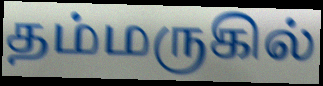
தம்மருகில்